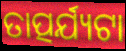
ତାତ୍ପର୍ଯ୍ୟଟା